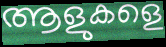
ആളുകളെ